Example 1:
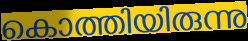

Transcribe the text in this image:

കൊത്തിയിരുന്നു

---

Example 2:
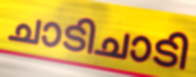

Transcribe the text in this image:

ചാടിചാടി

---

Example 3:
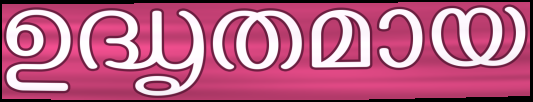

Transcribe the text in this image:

ഉദ്ധൃതമായ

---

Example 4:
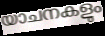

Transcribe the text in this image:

യാചനകളും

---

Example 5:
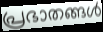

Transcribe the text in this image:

പ്രഭാതങ്ങൾ